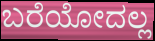
ಬರೆಯೋದಲ್ಲ